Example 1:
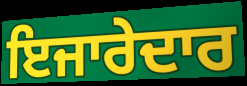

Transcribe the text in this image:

ਇਜਾਰੇਦਾਰ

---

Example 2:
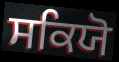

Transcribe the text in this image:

ਸਕਿਯੋ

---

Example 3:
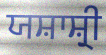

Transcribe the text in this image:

ਯਸ਼ਾਸ਼੍ਰੀ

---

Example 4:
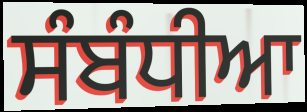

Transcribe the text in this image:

ਸੰਬੰਧੀਆ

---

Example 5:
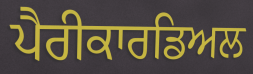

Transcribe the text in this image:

ਪੈਰੀਕਾਰਡਿਅਲ